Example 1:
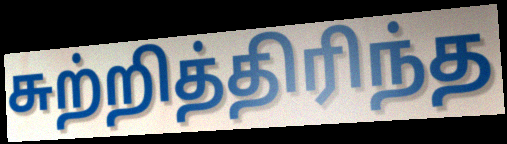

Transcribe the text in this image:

சுற்றித்திரிந்த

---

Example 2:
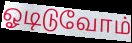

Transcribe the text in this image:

ஓடிடுவோம்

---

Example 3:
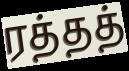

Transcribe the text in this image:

ரத்தத்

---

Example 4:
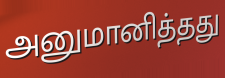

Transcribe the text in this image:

அனுமானித்தது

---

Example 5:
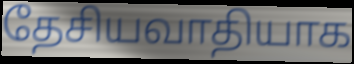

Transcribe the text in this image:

தேசியவாதியாக